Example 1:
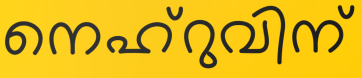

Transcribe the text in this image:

നെഹ്റുവിന്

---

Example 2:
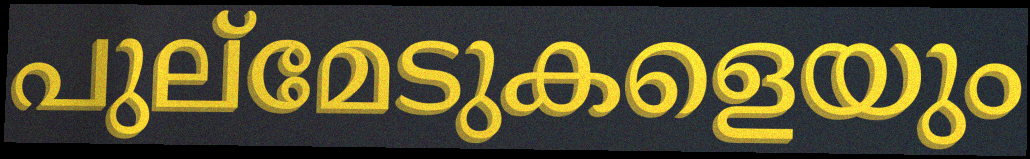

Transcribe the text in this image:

പുല്മേടുകളെയും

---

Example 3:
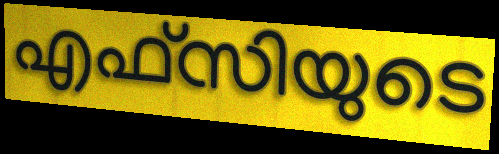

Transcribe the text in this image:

എഫ്സിയുടെ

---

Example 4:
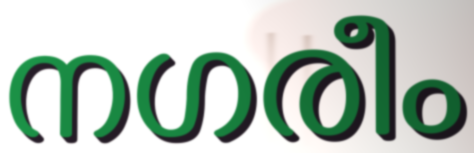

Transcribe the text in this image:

നഗരീം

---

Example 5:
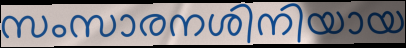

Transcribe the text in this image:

സംസാരനശിനിയായ